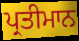
ਪ੍ਰਤੀਮਾਨ